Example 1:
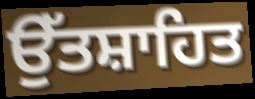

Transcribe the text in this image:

ਉੱਤਸ਼ਾਹਿਤ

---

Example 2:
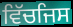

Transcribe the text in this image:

ਵਿੱਚਜਿਸ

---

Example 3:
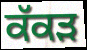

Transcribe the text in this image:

ਕੱਕਡ਼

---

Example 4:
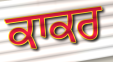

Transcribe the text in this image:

ਕਾਕਰ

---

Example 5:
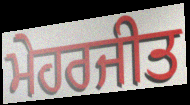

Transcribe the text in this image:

ਮੇਹਰਜੀਤ